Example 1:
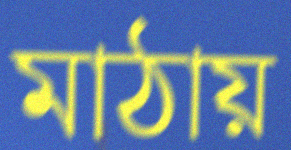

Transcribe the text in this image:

মাঠায়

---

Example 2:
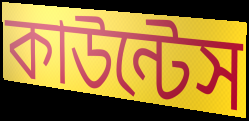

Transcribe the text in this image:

কাউন্টেস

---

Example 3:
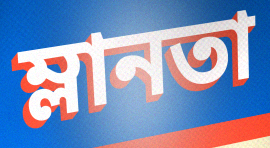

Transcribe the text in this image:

ম্লানতা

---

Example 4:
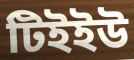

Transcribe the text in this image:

টিইইউ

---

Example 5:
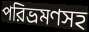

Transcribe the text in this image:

পরিভ্রমণসহ